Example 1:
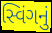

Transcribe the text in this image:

સ્વિંગનું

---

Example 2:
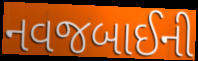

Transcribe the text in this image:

નવજબાઈની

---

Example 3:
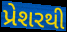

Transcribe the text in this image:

પ્રેશરથી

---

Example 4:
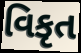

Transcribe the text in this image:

વિકૃત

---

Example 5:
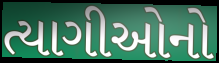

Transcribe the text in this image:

ત્યાગીઓનો